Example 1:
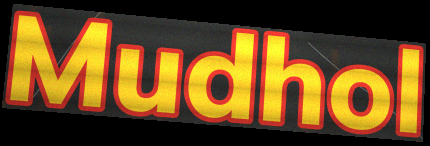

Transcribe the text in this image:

Mudhol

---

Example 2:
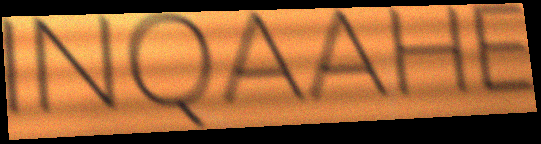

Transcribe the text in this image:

INQAAHE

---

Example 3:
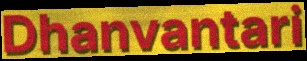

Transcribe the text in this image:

Dhanvantari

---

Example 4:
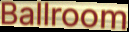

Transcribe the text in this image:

Ballroom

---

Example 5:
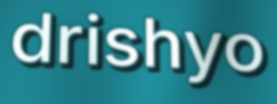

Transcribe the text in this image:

drishyo